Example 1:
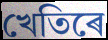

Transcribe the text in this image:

খেতিৰে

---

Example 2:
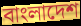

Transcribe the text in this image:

বাংলাদেশ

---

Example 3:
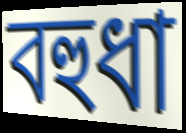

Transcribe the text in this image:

বহুধা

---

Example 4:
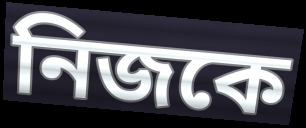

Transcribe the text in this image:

নিজকে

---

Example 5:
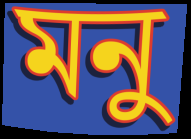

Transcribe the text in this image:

মনু